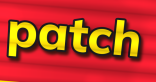
patch